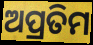
ଅପ୍ରତିମ